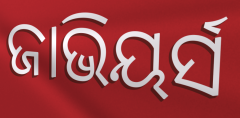
ଜାଭିୟର୍ସ